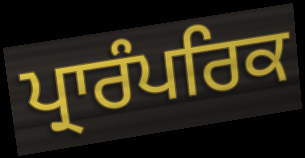
ਪ੍ਰਾਰੰਪਰਿਕ